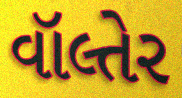
વૉલ્તેર